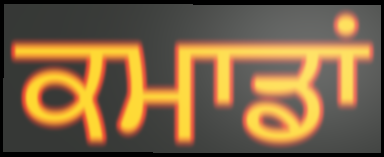
ਕਮਾਡਾਂ